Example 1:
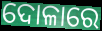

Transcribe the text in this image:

ଦୋଳାରେ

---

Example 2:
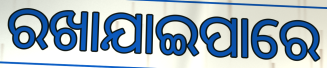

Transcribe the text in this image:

ରଖାଯାଇପାରେ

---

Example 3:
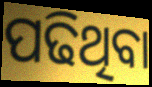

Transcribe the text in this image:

ପଢିଥିବା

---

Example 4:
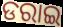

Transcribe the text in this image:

ଡରାଇ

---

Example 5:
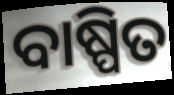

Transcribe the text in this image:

ବାଷ୍ପିତ